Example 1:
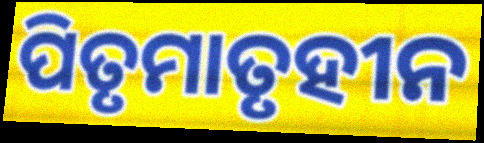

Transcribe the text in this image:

ପିତୃମାତୃହୀନ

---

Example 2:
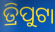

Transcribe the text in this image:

ତ୍ରିପୁଟା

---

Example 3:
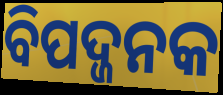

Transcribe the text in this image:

ବିପଦ୍ଜନକ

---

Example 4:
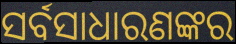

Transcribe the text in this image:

ସର୍ବସାଧାରଣଙ୍କର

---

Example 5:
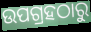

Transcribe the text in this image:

ଉପଗ୍ରହଠାରୁ